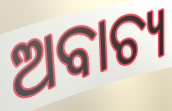
ଅବାଚ୍ୟ